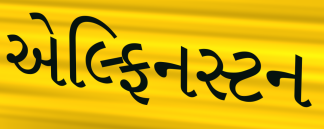
એલ્ફિનસ્ટન